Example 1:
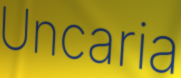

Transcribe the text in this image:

Uncaria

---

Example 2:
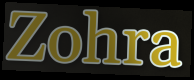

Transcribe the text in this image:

Zohra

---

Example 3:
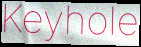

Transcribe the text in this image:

Keyhole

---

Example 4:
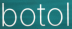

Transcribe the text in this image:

botol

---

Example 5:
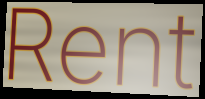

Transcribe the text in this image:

Rent